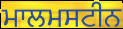
ਮਾਲਮਸਟੀਨ